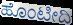
ಹೊಂಟೀದಿ